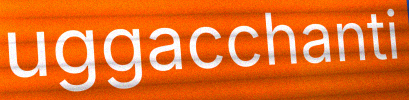
uggacchanti